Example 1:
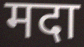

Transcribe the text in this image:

मदा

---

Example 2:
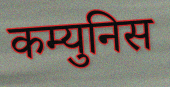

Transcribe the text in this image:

कम्युनिस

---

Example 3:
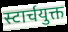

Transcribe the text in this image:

स्टार्चयुक्त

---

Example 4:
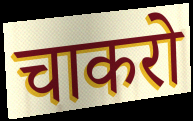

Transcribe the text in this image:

चाकरो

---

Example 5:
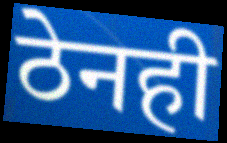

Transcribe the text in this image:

ठेनही